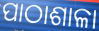
ପାଠାଶାଳା